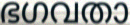
ഭഗവതാ